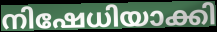
നിഷേധിയാക്കി